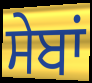
ਸੇਬਾਂ